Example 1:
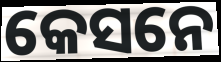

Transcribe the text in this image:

କେସନେ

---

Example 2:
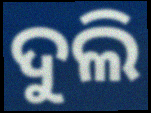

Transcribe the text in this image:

ଦୁଲି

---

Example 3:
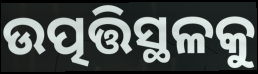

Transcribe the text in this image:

ଉତ୍ପତ୍ତିସ୍ଥଳକୁ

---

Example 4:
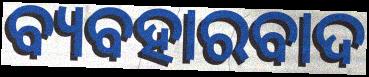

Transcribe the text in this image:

ବ୍ୟବହାରବାଦ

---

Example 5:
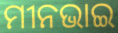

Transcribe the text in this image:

ମୀନଭାଇ